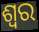
ଶ୍ୱର